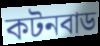
কটনবাড